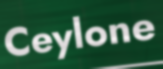
Ceylone